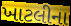
ખાટલીના